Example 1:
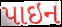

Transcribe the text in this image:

પાઇન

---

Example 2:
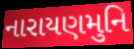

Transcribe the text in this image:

નારાયણમુનિ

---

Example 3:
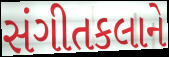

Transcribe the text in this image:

સંગીતકલાને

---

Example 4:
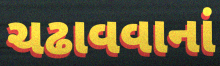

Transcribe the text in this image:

ચઢાવવાનાં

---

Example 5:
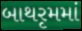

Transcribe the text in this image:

બાથરૃમમાં